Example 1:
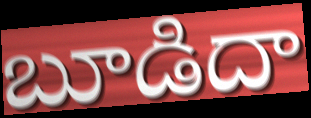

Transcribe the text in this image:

బూడిదా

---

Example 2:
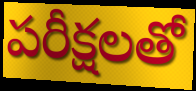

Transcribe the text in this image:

పరీక్షలతో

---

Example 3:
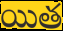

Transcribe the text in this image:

యిత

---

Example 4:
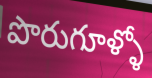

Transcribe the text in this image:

పొరుగూళ్ళో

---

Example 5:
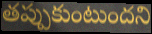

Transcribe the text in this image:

తప్పుకుంటుందని